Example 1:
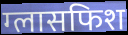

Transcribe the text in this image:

ग्लासफिश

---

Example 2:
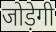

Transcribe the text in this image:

जोड़ेगी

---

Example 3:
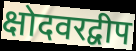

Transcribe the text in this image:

क्षोदवरद्वीप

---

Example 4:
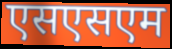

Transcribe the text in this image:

एसएसएम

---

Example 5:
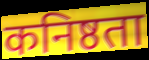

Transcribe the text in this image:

कनिष्ठता